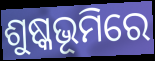
ଶୁଷ୍କଭୂମିରେ